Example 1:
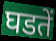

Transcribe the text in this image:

घडतें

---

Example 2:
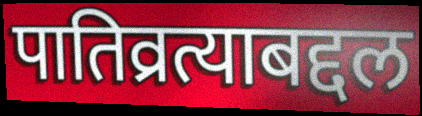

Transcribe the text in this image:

पातिव्रत्याबद्दल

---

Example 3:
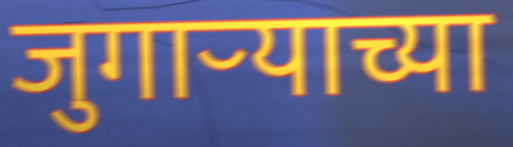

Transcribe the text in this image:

जुगाऱ्याच्या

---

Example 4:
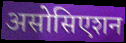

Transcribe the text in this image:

असोसिएशन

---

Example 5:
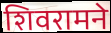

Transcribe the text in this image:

शिवरामने